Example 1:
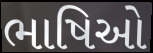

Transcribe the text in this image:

ભાષિઓ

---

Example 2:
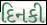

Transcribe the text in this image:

દિનકી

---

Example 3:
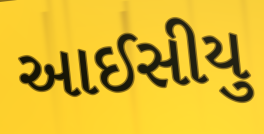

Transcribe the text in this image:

આઈસીયુ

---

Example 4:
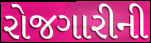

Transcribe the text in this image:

રોજગારીની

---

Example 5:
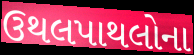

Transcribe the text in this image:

ઉથલપાથલોના